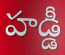
హడ్డీ